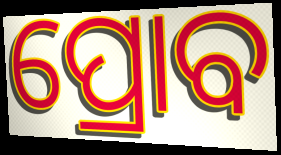
ପ୍ରୋବ